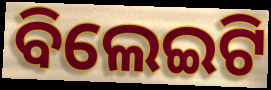
ବିଲେଇଟି